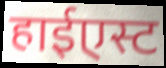
हाईएस्ट